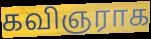
கவிஞராக